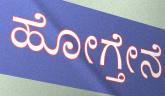
ಹೋಗ್ತೇನೆ